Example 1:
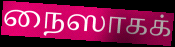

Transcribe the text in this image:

நைஸாகக்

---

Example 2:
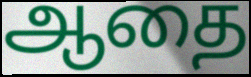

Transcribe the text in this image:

ஆதை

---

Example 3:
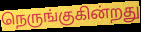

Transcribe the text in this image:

நெருங்குகின்றது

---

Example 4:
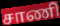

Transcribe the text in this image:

சாணி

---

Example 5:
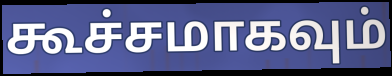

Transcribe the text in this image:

கூச்சமாகவும்